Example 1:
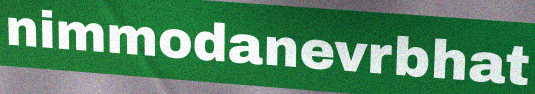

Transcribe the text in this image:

nimmodanevrbhat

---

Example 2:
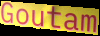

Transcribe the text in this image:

Goutam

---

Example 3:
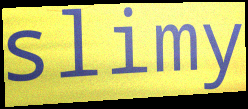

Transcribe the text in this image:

slimy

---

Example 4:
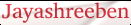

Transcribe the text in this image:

Jayashreeben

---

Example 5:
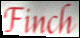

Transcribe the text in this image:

Finch